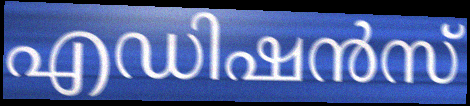
എഡിഷൻസ്